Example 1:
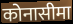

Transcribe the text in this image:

कोनासीमा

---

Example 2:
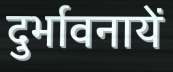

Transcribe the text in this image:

दुर्भावनायें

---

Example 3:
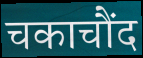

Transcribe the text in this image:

चकाचौंद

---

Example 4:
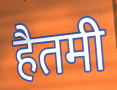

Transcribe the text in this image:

हैतमी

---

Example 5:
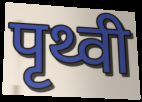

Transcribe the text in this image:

पृथ्वी